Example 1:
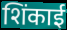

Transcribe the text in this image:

शिंकाई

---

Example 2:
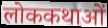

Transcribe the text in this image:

लोककथाओं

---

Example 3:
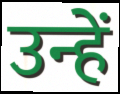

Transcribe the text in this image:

उन्‍हें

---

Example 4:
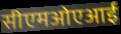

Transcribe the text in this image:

सीएमओएआई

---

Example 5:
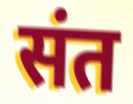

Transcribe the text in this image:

संत